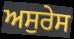
ਅਸੁਰੇਸ